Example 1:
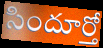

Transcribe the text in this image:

సిందూర్తో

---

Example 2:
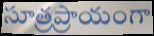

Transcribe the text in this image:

సూత్రప్రాయంగా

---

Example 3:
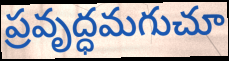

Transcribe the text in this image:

ప్రవృద్ధమగుచూ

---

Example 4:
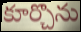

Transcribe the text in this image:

కూర్చొను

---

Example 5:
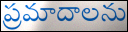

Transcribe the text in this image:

ప్రమాదాలను